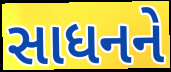
સાધનને